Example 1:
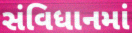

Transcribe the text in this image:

સંવિધાનમાં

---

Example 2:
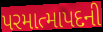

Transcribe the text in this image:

પરમાત્માપદની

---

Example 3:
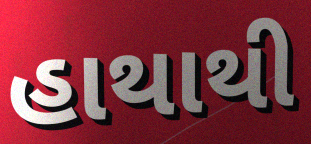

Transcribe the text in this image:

હાથાથી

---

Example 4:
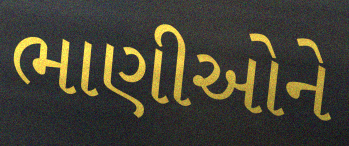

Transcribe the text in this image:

ભાણીઓને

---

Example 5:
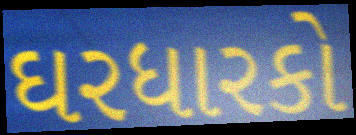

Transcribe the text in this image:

ઘરધારકો